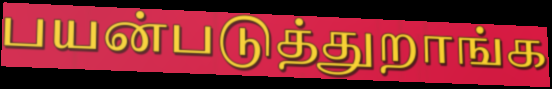
பயன்படுத்துறாங்க